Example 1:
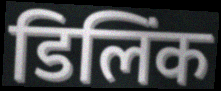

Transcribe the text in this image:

डिलिंक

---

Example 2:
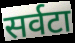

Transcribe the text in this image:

सर्वटा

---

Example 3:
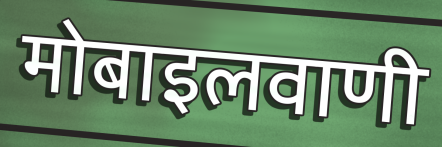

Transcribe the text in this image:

मोबाइलवाणी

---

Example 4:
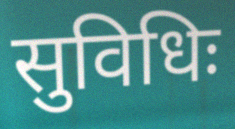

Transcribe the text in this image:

सुविधिः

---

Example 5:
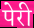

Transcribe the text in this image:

पेरी